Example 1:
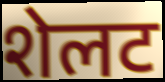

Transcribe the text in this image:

शेलट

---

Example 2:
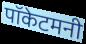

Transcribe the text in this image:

पॉकेटमनी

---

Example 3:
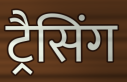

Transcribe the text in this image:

ट्रैसिंग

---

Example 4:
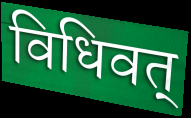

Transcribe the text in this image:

विधिवत्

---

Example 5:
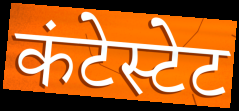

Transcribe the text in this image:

कंटेस्टेट